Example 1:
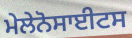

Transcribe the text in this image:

ਮੇਲੇਨੋਸਾਈਟਸ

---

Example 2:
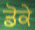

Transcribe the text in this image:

ਡੋਕੇ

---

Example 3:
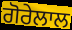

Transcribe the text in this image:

ਗੋਰੇਲਾਲ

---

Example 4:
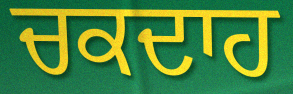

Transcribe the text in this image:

ਚਕਦਾਹ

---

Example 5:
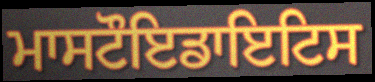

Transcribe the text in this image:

ਮਾਸਟੌਇਡਾਇਟਿਸ